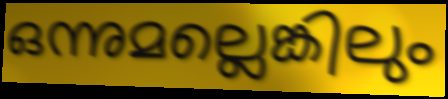
ഒന്നുമല്ലെങ്കിലും